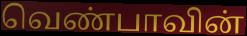
வெண்பாவின்